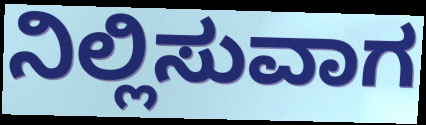
ನಿಲ್ಲಿಸುವಾಗ